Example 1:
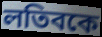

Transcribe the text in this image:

লতিবকে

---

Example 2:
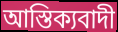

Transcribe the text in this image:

আস্তিক্যবাদী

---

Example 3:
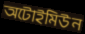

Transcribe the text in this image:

অটোইমিউন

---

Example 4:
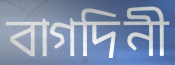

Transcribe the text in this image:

বাগদিনী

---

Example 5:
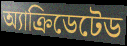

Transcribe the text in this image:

অ্যাক্রিডেটেড